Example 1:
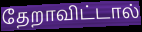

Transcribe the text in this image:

தேறாவிட்டால்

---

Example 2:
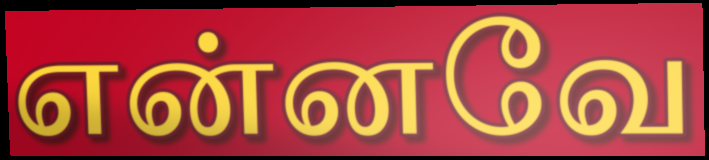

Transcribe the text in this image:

என்னவே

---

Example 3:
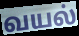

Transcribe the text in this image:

வயல்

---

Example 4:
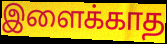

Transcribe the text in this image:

இளைக்காத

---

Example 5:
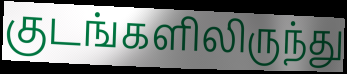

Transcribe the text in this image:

குடங்களிலிருந்து